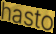
hasto